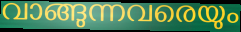
വാങ്ങുന്നവരെയും